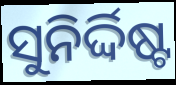
ସୁନିର୍ଦ୍ଦିଷ୍ଟ